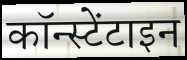
कॉन्स्टेंटाइन